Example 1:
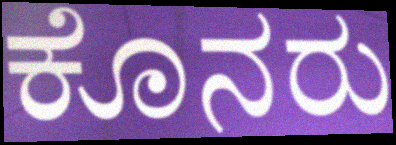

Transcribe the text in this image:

ಕೊನರು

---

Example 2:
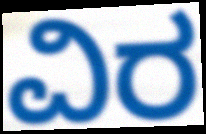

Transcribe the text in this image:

ವಿರ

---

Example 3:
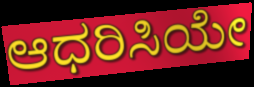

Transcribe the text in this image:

ಆಧರಿಸಿಯೇ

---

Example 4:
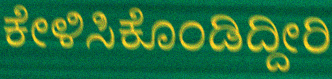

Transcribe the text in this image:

ಕೇಳಿಸಿಕೊಂಡಿದ್ದೀರಿ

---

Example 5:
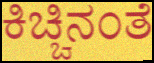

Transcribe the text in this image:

ಕಿಚ್ಚಿನಂತೆ